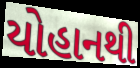
યોહાનથી